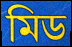
মিড